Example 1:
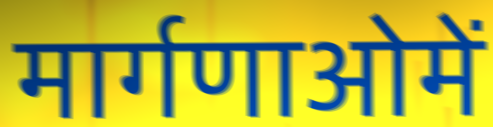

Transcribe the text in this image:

मार्गणाओमें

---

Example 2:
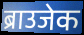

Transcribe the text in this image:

ब्राउजेक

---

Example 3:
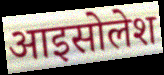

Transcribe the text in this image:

आइसोलेश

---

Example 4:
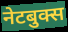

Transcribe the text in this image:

नेटबुक्स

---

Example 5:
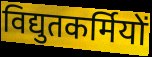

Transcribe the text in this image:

विद्युतकर्मियों